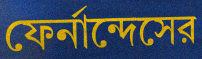
ফের্নান্দেসের